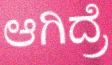
ಆಗಿದ್ರೆ